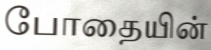
போதையின்